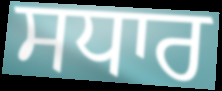
ਸਧਾਰ